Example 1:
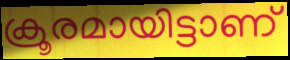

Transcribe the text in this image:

ക്രൂരമായിട്ടാണ്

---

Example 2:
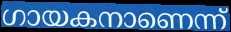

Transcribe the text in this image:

ഗായകനാണെന്ന്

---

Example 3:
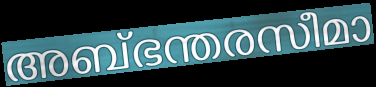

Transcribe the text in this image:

അബ്ഭന്തരസീമാ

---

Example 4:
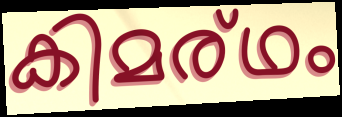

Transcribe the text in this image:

കിമര്ഥം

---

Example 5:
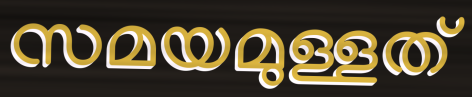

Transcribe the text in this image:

സമയമുള്ളത്